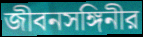
জীবনসঙ্গিনীর